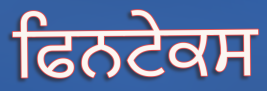
ਫਿਨਟੇਕਸ